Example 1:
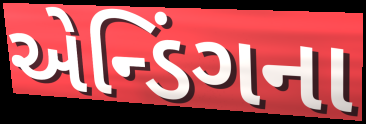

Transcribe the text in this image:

એન્ડિંગના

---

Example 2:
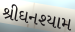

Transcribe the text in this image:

શ્રીઘનશ્યામ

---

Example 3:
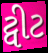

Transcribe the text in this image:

ટ્વીટ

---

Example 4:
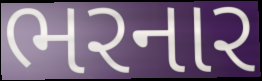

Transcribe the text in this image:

ભરનાર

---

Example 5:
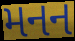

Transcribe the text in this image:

મનન